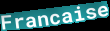
Francaise